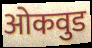
ओकवुड